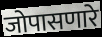
जोपासणारे